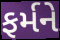
ફર્મને